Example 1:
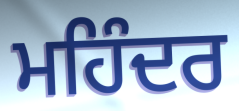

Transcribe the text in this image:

ਮਹਿੰਦਰ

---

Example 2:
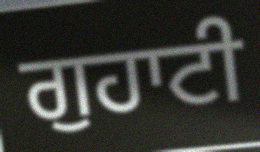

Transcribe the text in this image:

ਗੁਹਾਟੀ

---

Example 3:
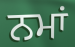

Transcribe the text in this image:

ਨਮਾਂ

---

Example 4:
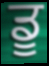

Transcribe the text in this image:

ਡੂ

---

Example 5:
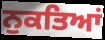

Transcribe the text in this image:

ਨੁਕਤਿਆਂ